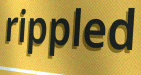
rippled